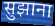
सुझाना